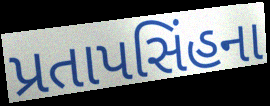
પ્રતાપસિંહના